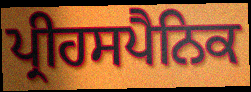
ਪ੍ਰੀਹਸਪੈਨਿਕ